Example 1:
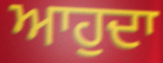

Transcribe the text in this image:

ਆਹੁਦਾ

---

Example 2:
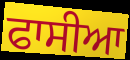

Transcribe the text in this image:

ਫਾਸੀਆ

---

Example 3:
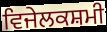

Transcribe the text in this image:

ਵਿਜੇਲਕਸ਼ਮੀ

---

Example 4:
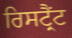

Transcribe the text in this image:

ਰਿਸਟ੍ਰੈਂਟ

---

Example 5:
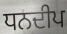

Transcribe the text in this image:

ਧਨਦੀਪ